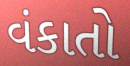
વંકાતો